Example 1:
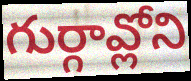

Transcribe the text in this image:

గుర్గావ్లోని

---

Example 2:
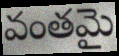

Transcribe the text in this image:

వంతమై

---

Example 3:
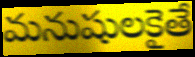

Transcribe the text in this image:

మనుషులకైతే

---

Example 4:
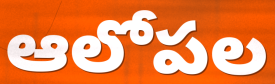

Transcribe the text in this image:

ఆలోపల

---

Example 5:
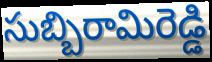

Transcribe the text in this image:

సుబ్బిరామిరెడ్డి